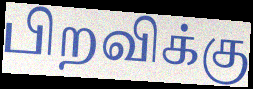
பிறவிக்கு